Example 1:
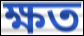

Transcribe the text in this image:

ক্ষত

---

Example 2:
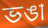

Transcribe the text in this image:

ভঙা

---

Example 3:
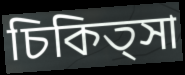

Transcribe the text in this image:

চিকিত্সা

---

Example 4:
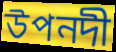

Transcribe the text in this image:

উপনদী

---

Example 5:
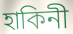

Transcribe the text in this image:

হাকিনী